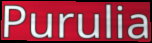
Purulia